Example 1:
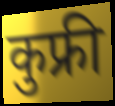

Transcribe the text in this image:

कुफ्री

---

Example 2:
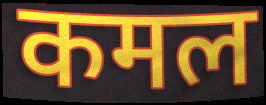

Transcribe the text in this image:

कमल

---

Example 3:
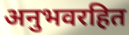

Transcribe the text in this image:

अनुभवरहित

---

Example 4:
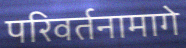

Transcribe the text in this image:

परिवर्तनामागे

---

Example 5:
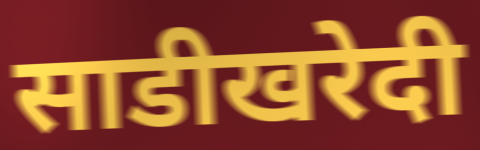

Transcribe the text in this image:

साडीखरेदी